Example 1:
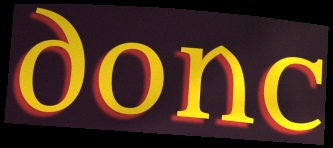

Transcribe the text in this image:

donc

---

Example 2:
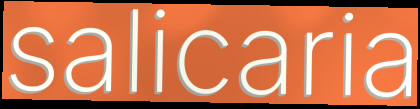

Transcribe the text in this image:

salicaria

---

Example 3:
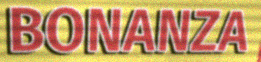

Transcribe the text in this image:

BONANZA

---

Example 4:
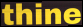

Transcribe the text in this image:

thine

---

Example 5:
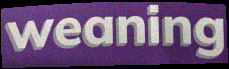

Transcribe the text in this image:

weaning